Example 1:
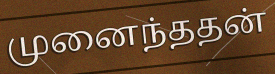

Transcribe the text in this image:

முனைந்ததன்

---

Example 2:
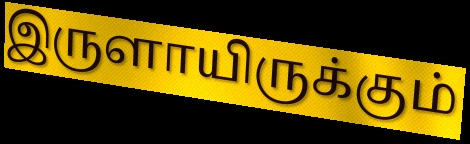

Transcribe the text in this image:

இருளாயிருக்கும்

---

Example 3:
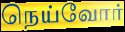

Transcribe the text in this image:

நெய்வோர்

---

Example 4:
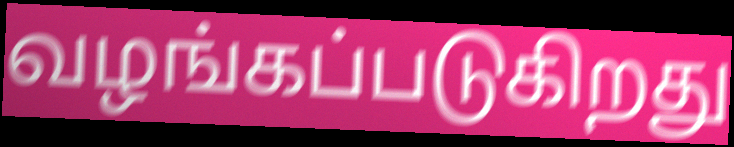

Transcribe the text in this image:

வழங்கப்படுகிறது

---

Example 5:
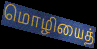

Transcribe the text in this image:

மொழியைத்